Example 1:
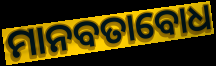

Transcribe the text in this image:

ମାନବତାବୋଧ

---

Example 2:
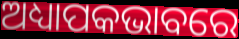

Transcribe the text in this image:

ଅଧ୍ୟାପକଭାବରେ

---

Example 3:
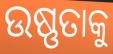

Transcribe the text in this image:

ଉଷ୍ଣତାକୁ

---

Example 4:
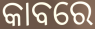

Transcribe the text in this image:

କାବରେ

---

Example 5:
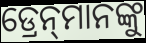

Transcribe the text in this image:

ଡ୍ରେନ୍‌ମାନଙ୍କୁ